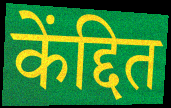
केंद्दित